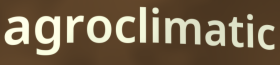
agroclimatic